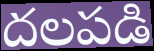
దలపడి